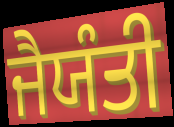
ਜੈਯੰਤੀ